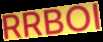
RRBOl